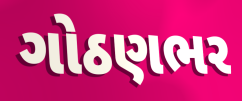
ગોઠણભર